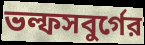
ভল্ফসবুর্গের